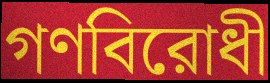
গণবিরোধী